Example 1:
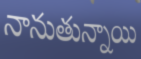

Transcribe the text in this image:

నానుతున్నాయి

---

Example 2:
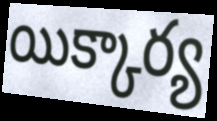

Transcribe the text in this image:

యిక్కార్య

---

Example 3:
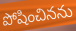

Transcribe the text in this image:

పోషించినను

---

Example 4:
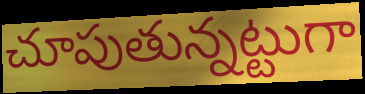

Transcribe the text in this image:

చూపుతున్నట్టుగా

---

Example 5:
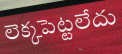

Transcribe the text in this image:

లెక్కపెట్టలేదు